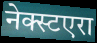
नेक्स्टएरा